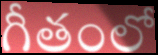
గీతంలో